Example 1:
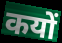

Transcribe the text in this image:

कयों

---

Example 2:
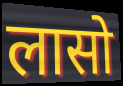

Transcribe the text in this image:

लासो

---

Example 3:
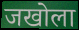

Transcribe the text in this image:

जखोला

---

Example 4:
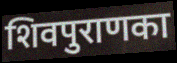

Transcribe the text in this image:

शिवपुराणका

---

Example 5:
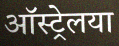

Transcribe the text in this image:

ऑस्ट्रेलया